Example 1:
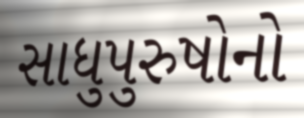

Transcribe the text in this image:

સાધુપુરુષોનો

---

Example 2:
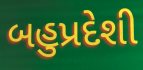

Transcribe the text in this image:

બહુપ્રદેશી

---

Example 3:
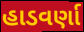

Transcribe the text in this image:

હાડવર્ણા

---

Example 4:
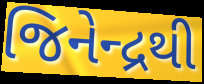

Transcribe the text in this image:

જિનેન્દ્રથી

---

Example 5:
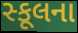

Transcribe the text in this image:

સ્કૂલના